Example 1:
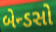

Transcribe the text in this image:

બેન્ડસો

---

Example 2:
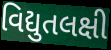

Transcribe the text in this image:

વિદ્યુતલક્ષી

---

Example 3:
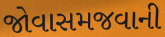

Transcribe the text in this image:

જોવાસમજવાની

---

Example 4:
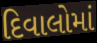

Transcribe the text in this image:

દિવાલોમાં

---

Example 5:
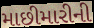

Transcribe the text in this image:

માછીમારીની